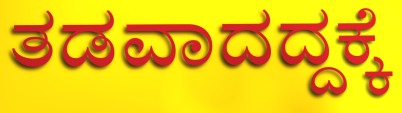
ತಡವಾದದ್ದಕ್ಕೆ